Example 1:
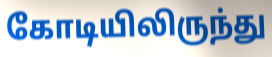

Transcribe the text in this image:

கோடியிலிருந்து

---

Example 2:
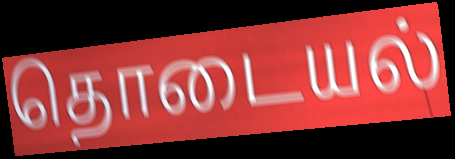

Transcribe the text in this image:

தொடையல்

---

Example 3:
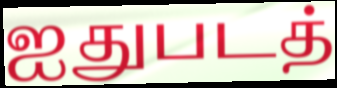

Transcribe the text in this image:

ஐதுபடத்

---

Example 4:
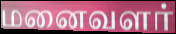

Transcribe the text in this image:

மனைவளர்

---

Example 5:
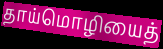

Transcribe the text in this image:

தாய்மொழியைத்